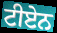
ਟੀਏਨ